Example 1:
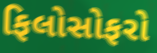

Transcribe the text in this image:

ફિલોસોફરો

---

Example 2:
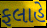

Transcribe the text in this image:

ફલાહે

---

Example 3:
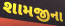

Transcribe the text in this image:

શામજીના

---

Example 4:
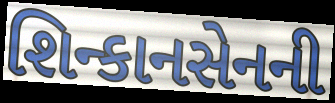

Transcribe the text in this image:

શિન્કાનસેનની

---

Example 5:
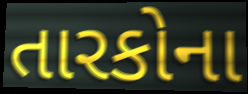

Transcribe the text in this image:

તારકોના